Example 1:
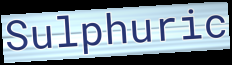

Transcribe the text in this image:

Sulphuric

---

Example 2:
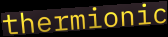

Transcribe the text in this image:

thermionic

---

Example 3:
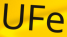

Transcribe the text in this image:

UFe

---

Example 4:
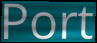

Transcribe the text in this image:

Port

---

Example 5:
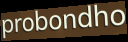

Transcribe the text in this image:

probondho